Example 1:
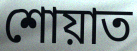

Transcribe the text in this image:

শোয়াত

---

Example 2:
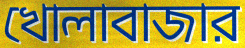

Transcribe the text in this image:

খোলাবাজার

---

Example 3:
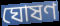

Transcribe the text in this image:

ঘোষণ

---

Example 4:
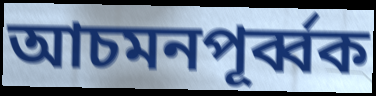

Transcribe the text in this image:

আচমনপূর্ব্বক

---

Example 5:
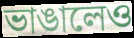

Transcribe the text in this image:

ভাঙালেও